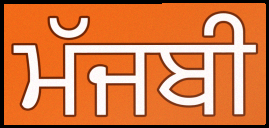
ਮੱਜਬੀ